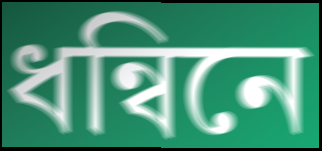
ধন্বিনে